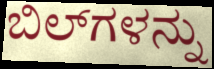
ಬಿಲ್‌ಗಳನ್ನು